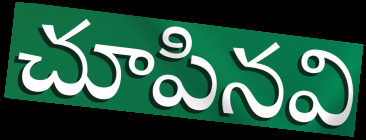
చూపినవి